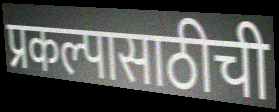
प्रकल्पासाठीची